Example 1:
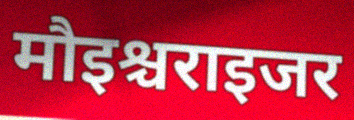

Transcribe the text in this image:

मौइश्चराइजर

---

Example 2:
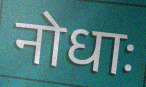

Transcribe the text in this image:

नोधाः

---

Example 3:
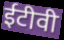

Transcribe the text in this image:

ईटीवी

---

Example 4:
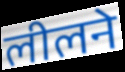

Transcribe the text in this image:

लीलने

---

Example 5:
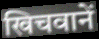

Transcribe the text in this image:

खिचवानें